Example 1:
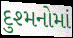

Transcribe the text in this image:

દુશ્મનોમાં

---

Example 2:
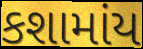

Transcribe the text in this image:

કશામાંય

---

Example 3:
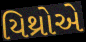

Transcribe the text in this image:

યિથ્રોએ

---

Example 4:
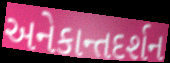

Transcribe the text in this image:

અનેકાન્તદર્શન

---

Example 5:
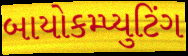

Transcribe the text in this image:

બાયોકમ્પ્યુટિંગ